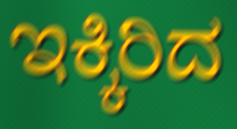
ಇಕ್ಕಿರಿದ